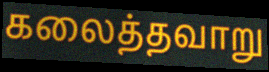
கலைத்தவாறு